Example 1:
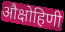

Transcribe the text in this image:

औक्षोहिणी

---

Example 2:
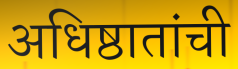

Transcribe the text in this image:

अधिष्ठातांची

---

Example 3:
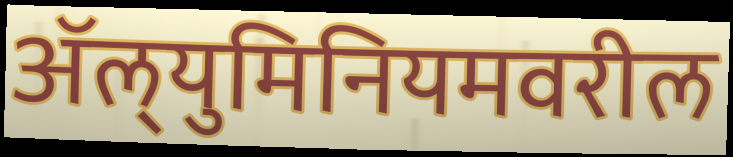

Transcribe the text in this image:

ॲल्युमिनियमवरील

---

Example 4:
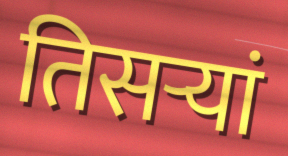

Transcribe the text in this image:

तिसऱ्यां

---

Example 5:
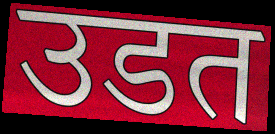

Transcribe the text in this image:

उडत